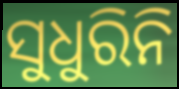
ସୁଧୁରିନି